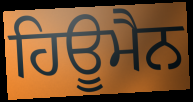
ਹਿਊਮੈਨ